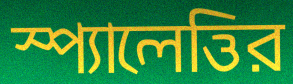
স্প্যালেত্তির